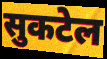
सुकटेल